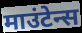
माउंटेन्स